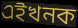
এইখনক